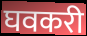
घवकरी